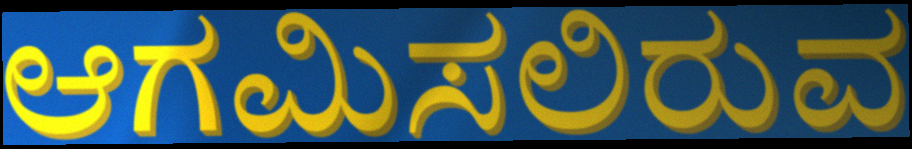
ಆಗಮಿಸಲಿರುವ